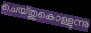
ചെയ്തുകൊള്ളുന്നു